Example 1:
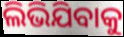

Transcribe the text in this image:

ଲିଭିଯିବାକୁ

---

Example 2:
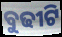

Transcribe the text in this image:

ବୁଢୀଟି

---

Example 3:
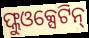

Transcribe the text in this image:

ଫ୍ଲୁଓକ୍ସେଟିନ୍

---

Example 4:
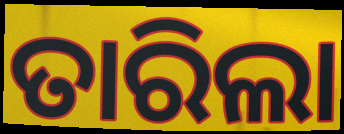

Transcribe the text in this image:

ତାରିଲା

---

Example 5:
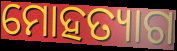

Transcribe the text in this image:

ମୋହତ୍ୟାଗ